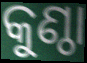
କୁଣ୍ଠା